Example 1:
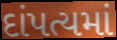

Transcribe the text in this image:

દાંપત્યમાં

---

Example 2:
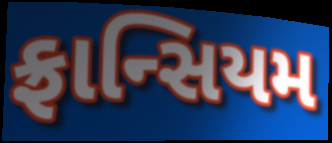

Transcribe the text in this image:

ફ્રાન્સિયમ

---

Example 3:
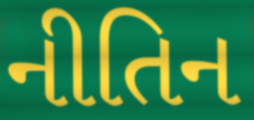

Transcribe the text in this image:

નીતિન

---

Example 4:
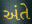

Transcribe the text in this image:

અંતે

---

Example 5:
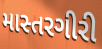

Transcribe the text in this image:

માસ્તરગીરી